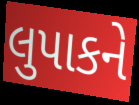
લુપાકને